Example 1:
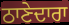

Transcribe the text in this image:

ਠਾਣੇਦਾਰਾ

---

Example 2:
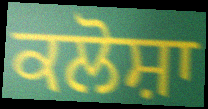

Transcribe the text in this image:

ਕਲੋਸ਼ਾ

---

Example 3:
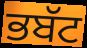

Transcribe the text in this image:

ਭਬੱਟ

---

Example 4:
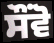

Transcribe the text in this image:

ਸੌਂਵੋ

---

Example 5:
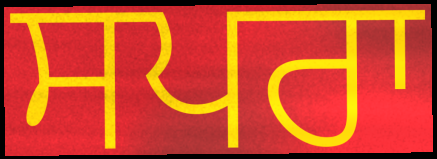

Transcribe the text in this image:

ਸਪਰਾ